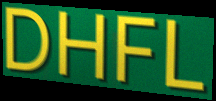
DHFL